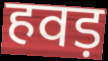
हवड़